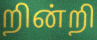
றின்றி